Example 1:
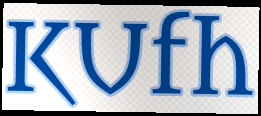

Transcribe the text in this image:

KUfh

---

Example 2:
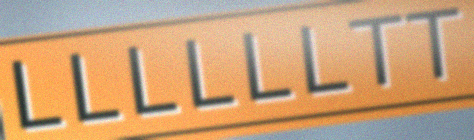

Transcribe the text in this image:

LLLLLLTT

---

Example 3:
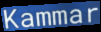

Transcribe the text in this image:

Kammar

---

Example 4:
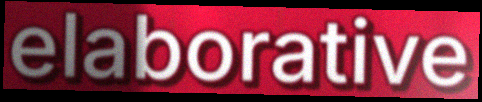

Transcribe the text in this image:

elaborative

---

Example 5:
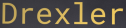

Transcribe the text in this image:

Drexler